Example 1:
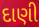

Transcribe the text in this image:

દાણી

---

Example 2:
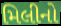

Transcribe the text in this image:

મિલીનો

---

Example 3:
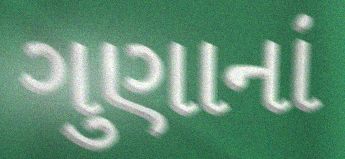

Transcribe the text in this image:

ગુણાનાં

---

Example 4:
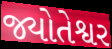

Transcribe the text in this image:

જ્યોતેશ્વર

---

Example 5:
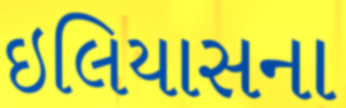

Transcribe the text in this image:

ઇલિયાસના